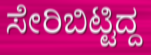
ಸೇರಿಬಿಟ್ಟಿದ್ದ